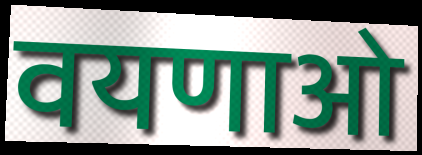
वयणाओ